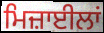
ਮਿਜ਼ਾਈਲਾਂ